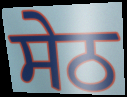
ਸੇਠ